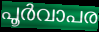
പൂർവാപര